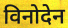
विनोदेन